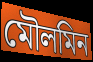
মৌলমিন